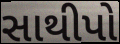
સાથીપો